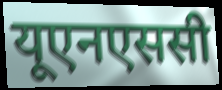
यूएनएससी